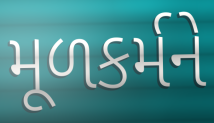
મૂળકર્મને